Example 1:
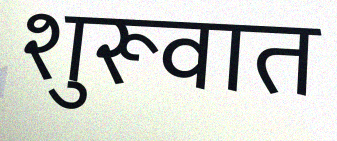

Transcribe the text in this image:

शुरूवात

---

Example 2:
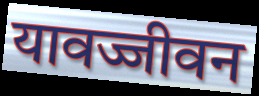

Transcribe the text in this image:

यावज्जीवन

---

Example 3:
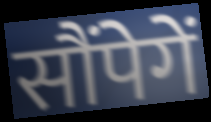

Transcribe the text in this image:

सौंपेगें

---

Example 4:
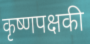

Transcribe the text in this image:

कृष्णपक्षकी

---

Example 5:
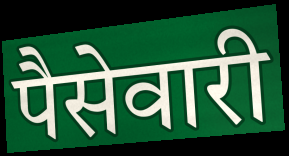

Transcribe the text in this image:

पैसेवारी